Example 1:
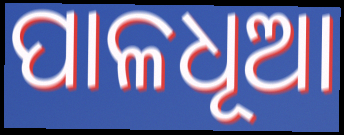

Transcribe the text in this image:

ପାଳଧୂଆ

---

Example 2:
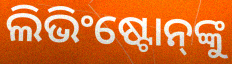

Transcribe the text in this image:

ଲିଭିଂଷ୍ଟୋନ୍‌ଙ୍କୁ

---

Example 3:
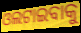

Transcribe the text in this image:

ଓଲଟାଇବାକୁ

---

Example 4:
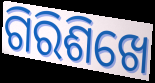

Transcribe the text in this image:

ଗିରିଶିଖେ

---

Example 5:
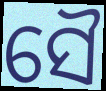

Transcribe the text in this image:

ସୈ